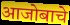
आजोबाचे